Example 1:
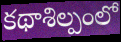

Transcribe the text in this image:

కథాశిల్పంలో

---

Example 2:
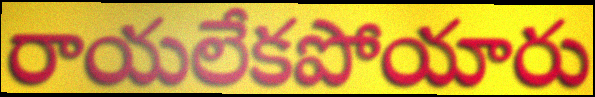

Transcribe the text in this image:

రాయలేకపోయారు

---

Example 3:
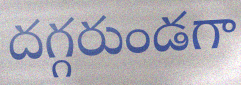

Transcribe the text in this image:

దగ్గరుండగా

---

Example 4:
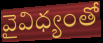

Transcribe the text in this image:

వైవిధ్యంతో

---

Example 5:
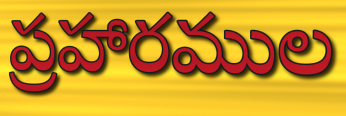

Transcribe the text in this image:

ప్రహారముల